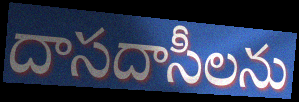
దాసదాసీలను